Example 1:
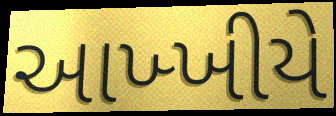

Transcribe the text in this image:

આખ્ખીયે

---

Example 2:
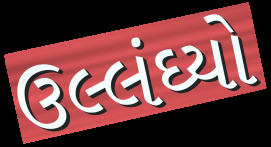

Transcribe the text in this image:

ઉલ્લંઘ્યો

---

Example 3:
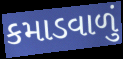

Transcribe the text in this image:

કમાડવાળું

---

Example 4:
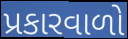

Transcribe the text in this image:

પ્રકારવાળો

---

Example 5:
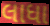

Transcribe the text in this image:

લાધા